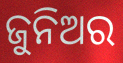
ଜୁନିଅର